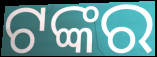
ଟଙ୍କର